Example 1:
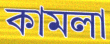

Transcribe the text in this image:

কামলা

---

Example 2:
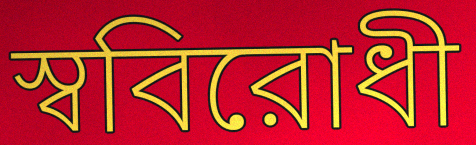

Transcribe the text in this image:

স্ববিরোধী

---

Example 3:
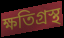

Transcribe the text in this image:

ক্ষতিগ্রস্থ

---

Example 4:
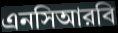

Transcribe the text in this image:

এনসিআরবি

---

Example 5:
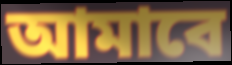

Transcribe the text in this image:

আমাবে